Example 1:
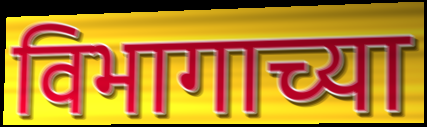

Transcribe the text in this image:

विभागाच्या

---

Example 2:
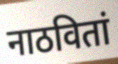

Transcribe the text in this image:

नाठवितां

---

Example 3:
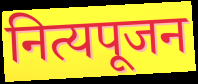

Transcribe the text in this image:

नित्यपूजन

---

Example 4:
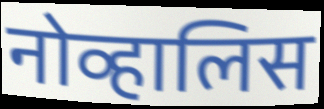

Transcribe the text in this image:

नोव्हालिस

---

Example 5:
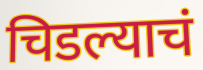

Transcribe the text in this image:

चिडल्याचं